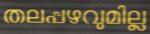
തലപ്പഴവുമില്ല